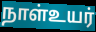
நாள்உயர்